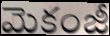
మెకంజీ